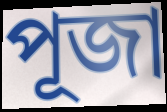
পূজা